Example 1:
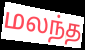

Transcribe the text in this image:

மலந்த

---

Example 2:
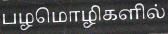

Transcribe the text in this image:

பழமொழிகளில்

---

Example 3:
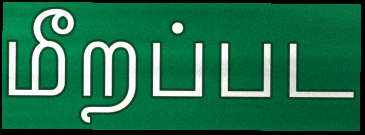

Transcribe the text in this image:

மீறப்பட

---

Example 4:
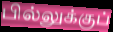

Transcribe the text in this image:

பில்லுக்குப்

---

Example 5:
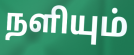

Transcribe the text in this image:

நளியும்